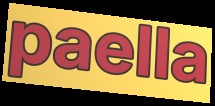
paella